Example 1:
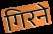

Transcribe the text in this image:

गिरने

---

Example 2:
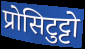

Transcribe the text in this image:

प्रोसिटुट्टो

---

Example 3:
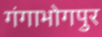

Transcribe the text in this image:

गंगाभोगपुर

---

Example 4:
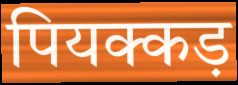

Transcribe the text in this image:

पियक्कड़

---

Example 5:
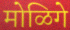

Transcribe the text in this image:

मोळिगे